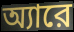
অ্যারে